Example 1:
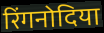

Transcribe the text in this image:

रिंगनोदिया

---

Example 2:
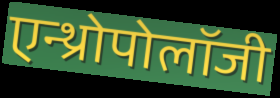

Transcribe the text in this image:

एन्थ्रोपोलॉजी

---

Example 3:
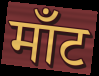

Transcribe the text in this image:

माँट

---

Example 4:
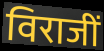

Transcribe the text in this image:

विराजीं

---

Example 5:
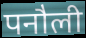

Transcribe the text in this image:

पनौली